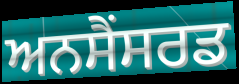
ਅਨਸੈਂਸਰਡ